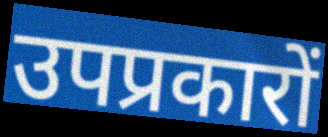
उपप्रकारों